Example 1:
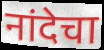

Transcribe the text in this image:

नांदेचा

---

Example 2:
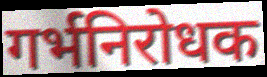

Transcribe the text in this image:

गर्भनिरोधक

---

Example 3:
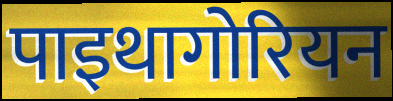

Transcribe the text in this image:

पाइथागोरियन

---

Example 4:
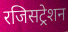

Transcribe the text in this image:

रजिसट्रेशन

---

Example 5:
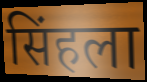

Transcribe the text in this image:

सिंहला